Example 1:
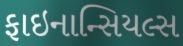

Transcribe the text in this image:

ફાઇનાન્સિયલ્સ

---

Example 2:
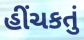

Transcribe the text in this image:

હીંચકતું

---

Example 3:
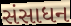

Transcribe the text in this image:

સંસાધન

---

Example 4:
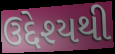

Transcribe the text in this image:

ઉદ્દેશ્યથી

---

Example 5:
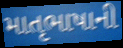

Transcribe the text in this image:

માતૃભાષાની